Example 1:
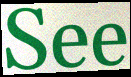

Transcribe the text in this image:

See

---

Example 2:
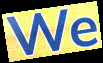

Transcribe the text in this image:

We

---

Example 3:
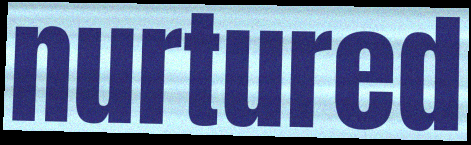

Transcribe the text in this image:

nurtured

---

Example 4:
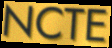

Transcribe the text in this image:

NCTE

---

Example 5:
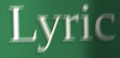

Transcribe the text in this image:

Lyric